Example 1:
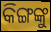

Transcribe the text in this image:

କିଙ୍ଗଙ୍କୁ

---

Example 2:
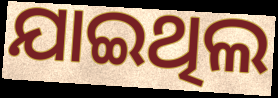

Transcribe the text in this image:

ଯାଇଥିଲ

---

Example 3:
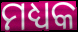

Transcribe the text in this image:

ମଧ୍ଯକ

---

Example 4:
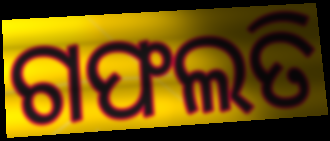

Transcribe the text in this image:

ଗଫଲତି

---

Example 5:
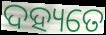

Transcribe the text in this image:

ଦହ୍ୟତେ